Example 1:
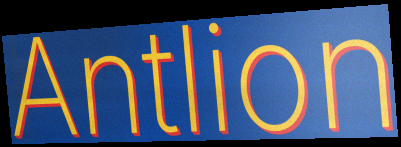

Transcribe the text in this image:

Antlion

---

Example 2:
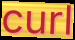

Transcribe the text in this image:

curl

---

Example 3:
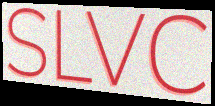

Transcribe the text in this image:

SLVC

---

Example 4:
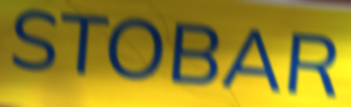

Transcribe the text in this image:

STOBAR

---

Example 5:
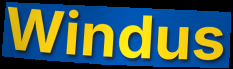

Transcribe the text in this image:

Windus